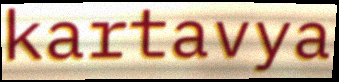
kartavya